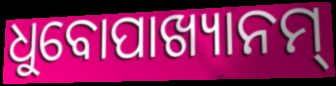
ଧୁବୋପାଖ୍ୟାନମ୍